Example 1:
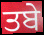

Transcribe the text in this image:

ਤਬੇ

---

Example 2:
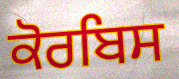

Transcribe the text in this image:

ਕੋਰਬਿਸ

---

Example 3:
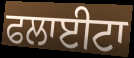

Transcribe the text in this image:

ਫਲਾਈਟਾ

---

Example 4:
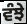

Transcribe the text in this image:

ਵੰਝੇ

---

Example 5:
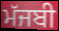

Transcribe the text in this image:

ਮੱਜਬੀ